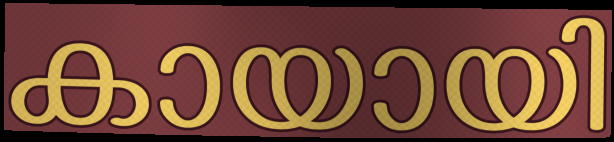
കായായി